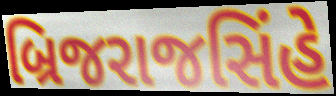
બ્રિજરાજસિંહે